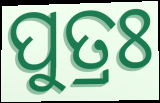
ପୁତ୍ରଃ